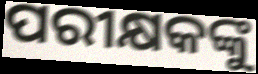
ପରୀକ୍ଷକଙ୍କୁ